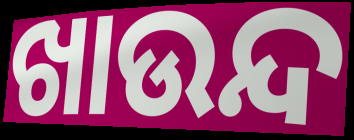
ଖାଉନ୍ଦ